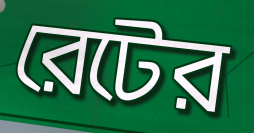
রেটের